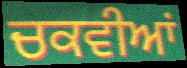
ਚਕਵੀਆਂ